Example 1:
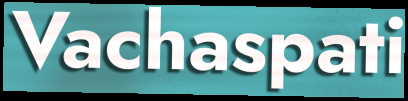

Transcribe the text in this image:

Vachaspati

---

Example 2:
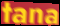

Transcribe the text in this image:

tana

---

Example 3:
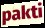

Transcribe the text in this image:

pakti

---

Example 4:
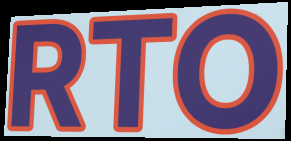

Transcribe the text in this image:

RTO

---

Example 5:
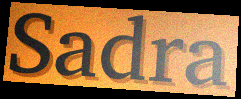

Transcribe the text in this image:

Sadra